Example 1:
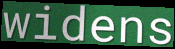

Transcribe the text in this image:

widens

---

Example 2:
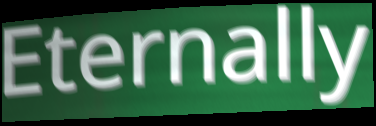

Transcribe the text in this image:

Eternally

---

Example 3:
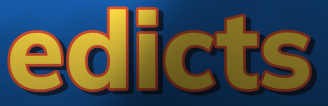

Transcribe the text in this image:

edicts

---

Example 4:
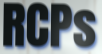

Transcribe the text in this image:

RCPs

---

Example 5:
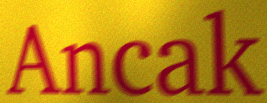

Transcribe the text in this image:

Ancak